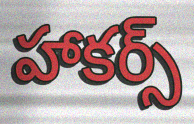
హాకర్స్